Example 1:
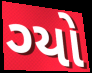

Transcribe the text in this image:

ગ્યો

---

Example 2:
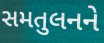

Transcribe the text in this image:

સમતુલનને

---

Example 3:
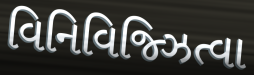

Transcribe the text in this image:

વિનિવિજ્ઝિત્વા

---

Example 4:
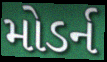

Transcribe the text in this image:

મોડર્ન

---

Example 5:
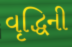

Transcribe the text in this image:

વૃદ્ધિની